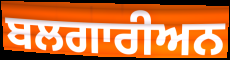
ਬਲਗਾਰੀਅਨ